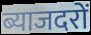
ब्याजदरों